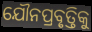
ଯୌନପ୍ରବୃତ୍ତିକୁ